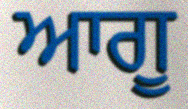
ਆਗੂ